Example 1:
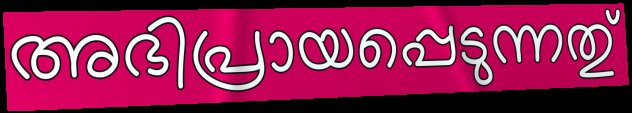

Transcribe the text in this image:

അഭിപ്രായപ്പെടുന്നതു്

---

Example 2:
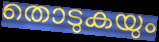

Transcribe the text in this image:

തൊടുകയും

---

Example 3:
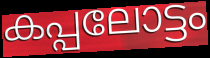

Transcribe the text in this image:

കപ്പലോട്ടം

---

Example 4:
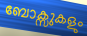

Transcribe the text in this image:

ബോക്സുകളും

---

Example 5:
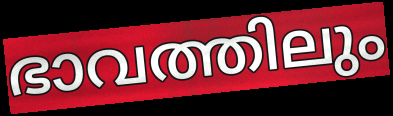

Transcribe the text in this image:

ഭാവത്തിലും